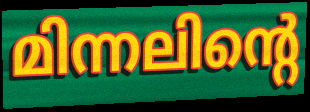
മിന്നലിന്റെ